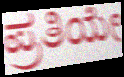
ಪ್ರತಿಯೇ